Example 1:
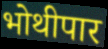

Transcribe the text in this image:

भोथीपार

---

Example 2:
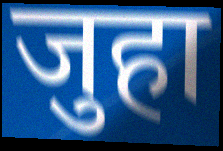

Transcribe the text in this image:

जुहा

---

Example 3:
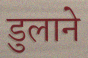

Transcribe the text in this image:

डुलाने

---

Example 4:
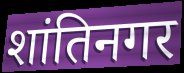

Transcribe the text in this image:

शांतिनगर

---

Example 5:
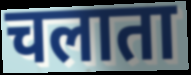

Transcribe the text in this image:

चलाता